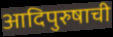
आदिपुरुषाची